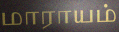
மாராயம்